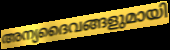
അന്യദൈവങ്ങളുമായി